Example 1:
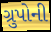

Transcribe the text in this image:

ગ્રુપોની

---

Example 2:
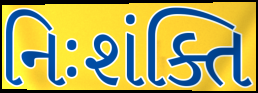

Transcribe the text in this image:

નિઃશંક્તિ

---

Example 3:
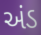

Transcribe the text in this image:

અંડ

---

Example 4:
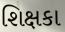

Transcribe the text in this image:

શિક્ષકા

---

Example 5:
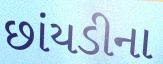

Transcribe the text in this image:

છાંયડીના